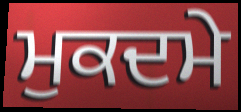
ਮੁਕਦਮੇ